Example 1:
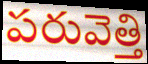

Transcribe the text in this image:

పరువెత్తి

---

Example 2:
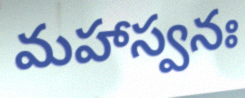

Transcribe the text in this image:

మహాస్వనః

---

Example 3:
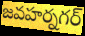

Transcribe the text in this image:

జవహర్నగర్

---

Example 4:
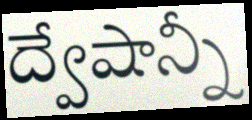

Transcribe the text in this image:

ద్వేషాన్నీ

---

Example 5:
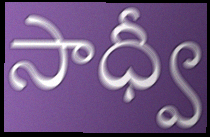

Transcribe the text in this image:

సాధ్వీ